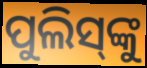
ପୁଲିସ୍‌ଙ୍କୁ